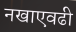
नखाएवढी